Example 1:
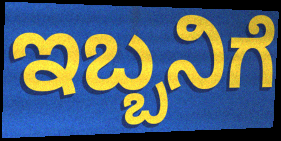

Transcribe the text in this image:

ಇಬ್ಬನಿಗೆ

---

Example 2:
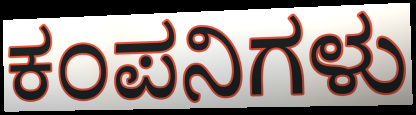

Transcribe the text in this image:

ಕಂಪನಿಗಳು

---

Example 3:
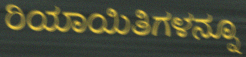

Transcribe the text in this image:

ರಿಯಾಯಿತಿಗಳನ್ನೂ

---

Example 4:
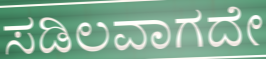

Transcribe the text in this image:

ಸಡಿಲವಾಗದೇ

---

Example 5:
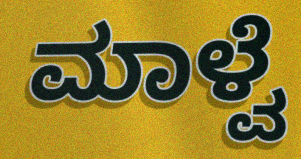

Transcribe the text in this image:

ಮಾಳ್ವೆ